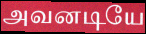
அவனடியே